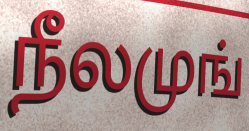
நீலமுங்